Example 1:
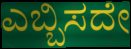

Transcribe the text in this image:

ಎಬ್ಬಿಸದೇ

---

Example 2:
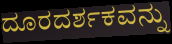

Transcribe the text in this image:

ದೂರದರ್ಶಕವನ್ನು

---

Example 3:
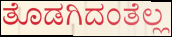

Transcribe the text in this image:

ತೊಡಗಿದಂತೆಲ್ಲ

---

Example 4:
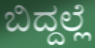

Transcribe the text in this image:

ಬಿದ್ದಲ್ಲೆ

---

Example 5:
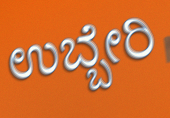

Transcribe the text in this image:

ಉಬ್ಬೇರಿ